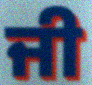
ਜੀ